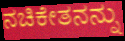
ನಚಿಕೇತನನ್ನು